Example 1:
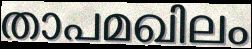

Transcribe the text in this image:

താപമഖിലം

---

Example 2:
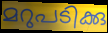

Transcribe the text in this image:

മറുപടിക്കു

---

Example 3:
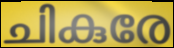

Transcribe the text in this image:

ചികുരേ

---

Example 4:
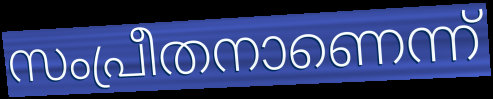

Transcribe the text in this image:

സംപ്രീതനാണെന്ന്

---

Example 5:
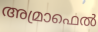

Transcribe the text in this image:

അമ്രാഫെൽ